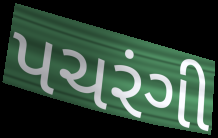
પચરંગી